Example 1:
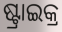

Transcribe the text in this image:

ଷ୍ଟ୍ରାଇକ୍ର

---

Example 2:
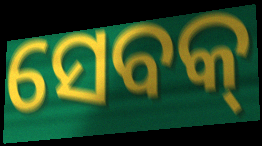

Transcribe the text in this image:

ସେବକ୍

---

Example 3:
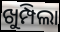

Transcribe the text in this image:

ଖୁମ୍ପିଲା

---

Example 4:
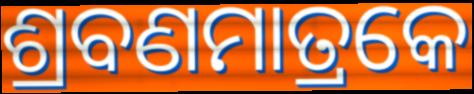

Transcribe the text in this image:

ଶ୍ରବଣମାତ୍ରକେ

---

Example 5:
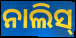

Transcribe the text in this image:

ନାଲିସ୍